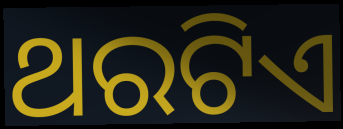
ଥରଟିଏ